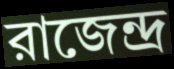
রাজেন্দ্র